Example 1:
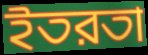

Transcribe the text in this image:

ইতরতা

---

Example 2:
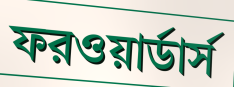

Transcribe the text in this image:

ফরওয়ার্ডার্স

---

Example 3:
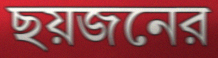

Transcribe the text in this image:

ছয়জনের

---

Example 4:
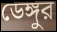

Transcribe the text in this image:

ডেঙ্গুর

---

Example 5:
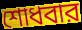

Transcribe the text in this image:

শোধবার